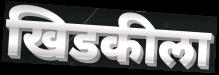
खिडकीला